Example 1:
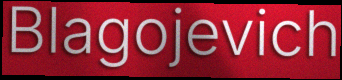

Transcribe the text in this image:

Blagojevich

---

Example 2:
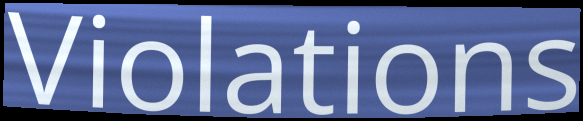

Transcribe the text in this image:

Violations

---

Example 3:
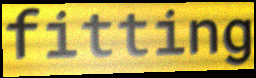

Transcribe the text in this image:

fitting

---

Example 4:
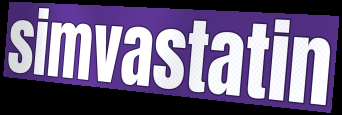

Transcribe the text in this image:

simvastatin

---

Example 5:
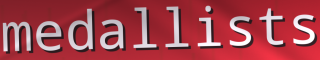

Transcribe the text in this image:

medallists